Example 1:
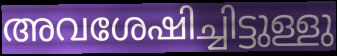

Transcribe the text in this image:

അവശേഷിച്ചിട്ടുള്ളു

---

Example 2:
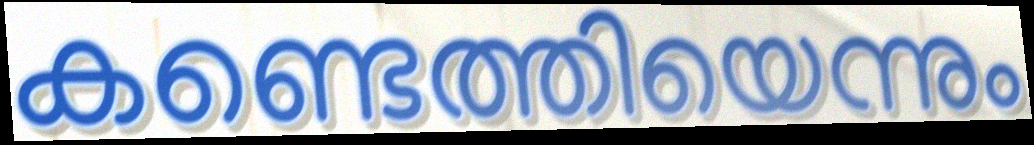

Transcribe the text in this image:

കണ്ടെത്തിയെന്നും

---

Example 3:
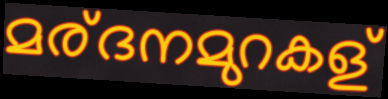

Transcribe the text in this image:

മര്ദനമുറകള്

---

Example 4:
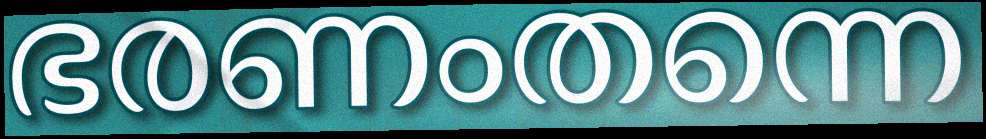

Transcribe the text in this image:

ഭരണംതന്നെ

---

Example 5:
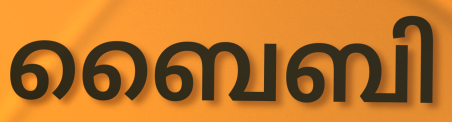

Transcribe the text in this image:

ബൈബി